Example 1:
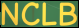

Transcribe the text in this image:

NCLB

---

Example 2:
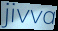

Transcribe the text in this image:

jivva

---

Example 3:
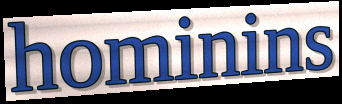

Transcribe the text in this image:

hominins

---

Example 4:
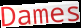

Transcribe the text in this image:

Dames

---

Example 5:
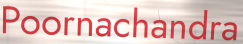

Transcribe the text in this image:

Poornachandra